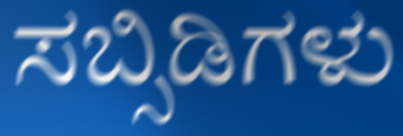
ಸಬ್ಸಿಡಿಗಳು